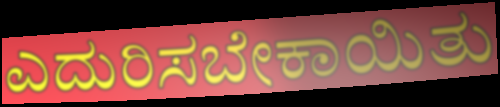
ಎದುರಿಸಬೇಕಾಯಿತು